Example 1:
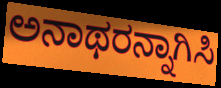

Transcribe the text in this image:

ಅನಾಥರನ್ನಾಗಿಸಿ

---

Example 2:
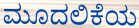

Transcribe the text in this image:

ಮೂದಲಿಕೆಯ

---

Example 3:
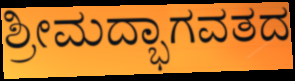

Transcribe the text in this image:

ಶ್ರೀಮದ್ಭಾಗವತದ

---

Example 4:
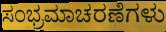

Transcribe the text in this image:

ಸಂಭ್ರಮಾಚರಣೆಗಳು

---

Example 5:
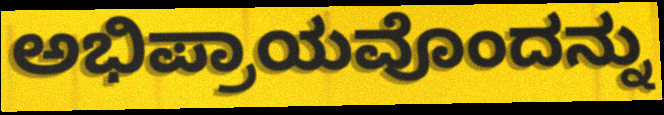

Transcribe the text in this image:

ಅಭಿಪ್ರಾಯವೊಂದನ್ನು